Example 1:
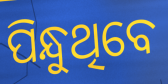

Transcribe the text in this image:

ପିନ୍ଧୁଥିବେ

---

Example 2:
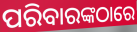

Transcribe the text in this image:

ପରିବାରଙ୍କଠାରେ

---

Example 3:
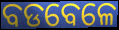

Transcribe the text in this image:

ବଡବେଳେ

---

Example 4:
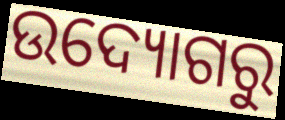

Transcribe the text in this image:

ଉଦ୍ୟୋଗରୁ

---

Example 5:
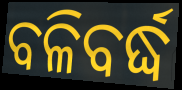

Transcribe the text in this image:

ବଳିବର୍ଦ୍ଧ